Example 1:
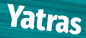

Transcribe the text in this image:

Yatras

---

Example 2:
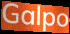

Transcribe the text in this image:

Galpo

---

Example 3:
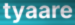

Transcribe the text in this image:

tyaare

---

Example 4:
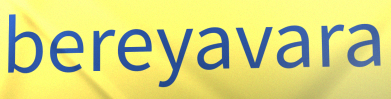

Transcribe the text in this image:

bereyavara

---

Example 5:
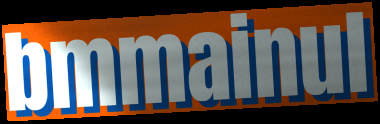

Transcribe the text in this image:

bmmainul